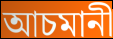
আচমানী